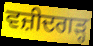
ਵਜ਼ੀਦਗੜ੍ਹ